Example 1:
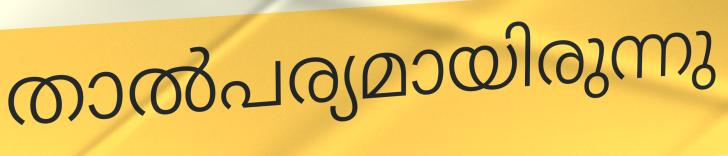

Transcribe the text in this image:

താൽപര്യമായിരുന്നു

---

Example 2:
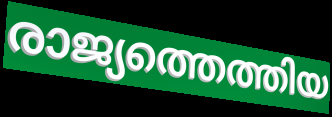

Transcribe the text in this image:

രാജ്യത്തെത്തിയ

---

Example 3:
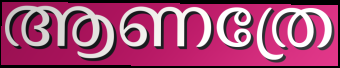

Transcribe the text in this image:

ആണത്രേ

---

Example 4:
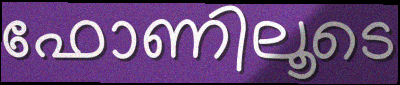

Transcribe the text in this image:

ഫോണിലൂടെ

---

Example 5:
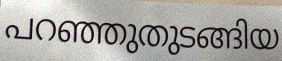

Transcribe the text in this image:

പറഞ്ഞുതുടങ്ങിയ